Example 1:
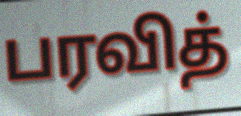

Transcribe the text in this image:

பரவித்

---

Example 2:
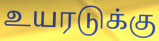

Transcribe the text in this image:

உயரடுக்கு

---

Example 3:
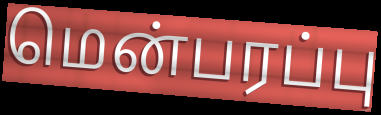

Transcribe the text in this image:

மென்பரப்பு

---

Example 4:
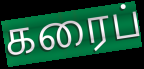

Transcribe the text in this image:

கரைப்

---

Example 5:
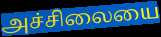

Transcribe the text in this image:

அச்சிலையை